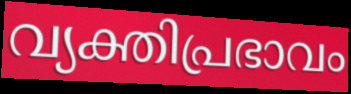
വ്യക്തിപ്രഭാവം